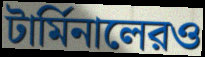
টার্মিনালেরও